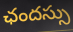
ఛందస్సు